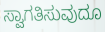
ಸ್ವಾಗತಿಸುವುದೂ